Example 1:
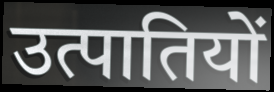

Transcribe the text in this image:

उत्पातियों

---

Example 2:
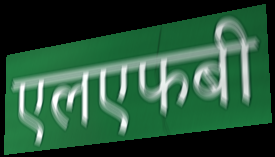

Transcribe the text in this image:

एलएफबी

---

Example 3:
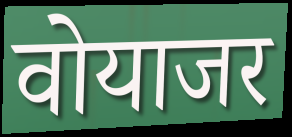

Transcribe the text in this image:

वोयाजर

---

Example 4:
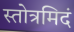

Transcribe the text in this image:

स्तोत्रमिदं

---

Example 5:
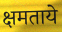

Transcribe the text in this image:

क्षमताये